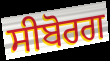
ਸੀਬੋਰਗ